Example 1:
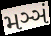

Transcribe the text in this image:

મઞ્ઞં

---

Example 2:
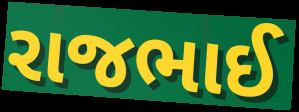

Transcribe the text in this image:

રાજભાઈ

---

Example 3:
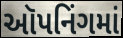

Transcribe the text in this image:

ઑપનિંગમાં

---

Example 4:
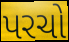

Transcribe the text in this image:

પરચો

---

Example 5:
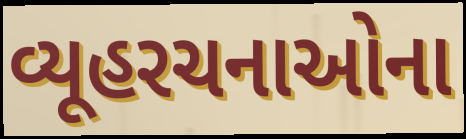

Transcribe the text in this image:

વ્યૂહરચનાઓના